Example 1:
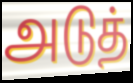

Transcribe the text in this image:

அடுத்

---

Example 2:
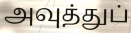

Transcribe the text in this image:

அவுத்துப்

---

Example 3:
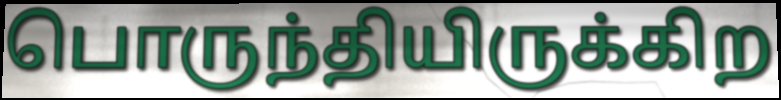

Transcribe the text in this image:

பொருந்தியிருக்கிற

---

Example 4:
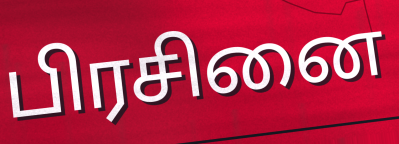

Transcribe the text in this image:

பிரசினை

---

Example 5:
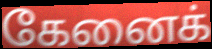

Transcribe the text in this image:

கேனைக்